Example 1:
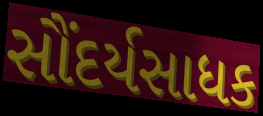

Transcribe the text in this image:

સૌંદર્યસાધક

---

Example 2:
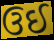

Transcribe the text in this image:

ઉઈ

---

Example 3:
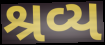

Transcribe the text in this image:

શ્રવ્ય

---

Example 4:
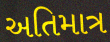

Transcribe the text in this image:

અતિમાત્ર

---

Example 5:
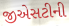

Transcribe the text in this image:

જીએસટીની